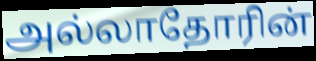
அல்லாதோரின்